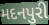
મદનપુરી